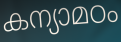
കന്യാമഠം